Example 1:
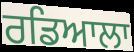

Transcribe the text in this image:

ਰਡਿਆਲਾ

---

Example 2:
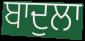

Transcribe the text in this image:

ਬਾਦੁਲਾ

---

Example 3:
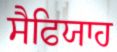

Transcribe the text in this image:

ਸੈਫਿਯਾਹ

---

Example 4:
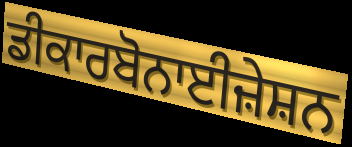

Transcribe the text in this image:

ਡੀਕਾਰਬੋਨਾਈਜ਼ੇਸ਼ਨ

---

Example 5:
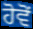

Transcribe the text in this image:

ਹੋਵੋਂ